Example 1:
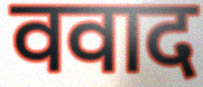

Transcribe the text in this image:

ववाद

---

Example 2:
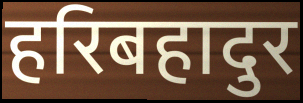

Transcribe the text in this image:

हरिबहादुर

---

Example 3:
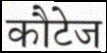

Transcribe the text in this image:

कौटेज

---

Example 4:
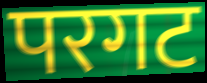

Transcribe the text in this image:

परगट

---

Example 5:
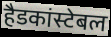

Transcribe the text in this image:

हैडकांस्टेबल